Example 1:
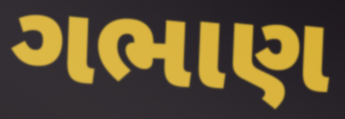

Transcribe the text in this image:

ગભાણ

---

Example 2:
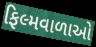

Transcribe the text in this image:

ફિલ્મવાળાઓ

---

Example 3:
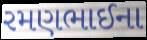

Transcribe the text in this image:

રમણભાઈના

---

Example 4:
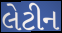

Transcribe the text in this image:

લેટીન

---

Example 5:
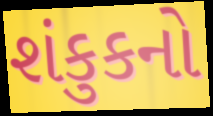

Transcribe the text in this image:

શંકુકનો